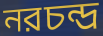
নরচন্দ্র